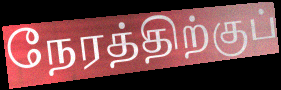
நேரத்திற்குப்